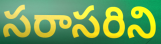
సరాసరిని